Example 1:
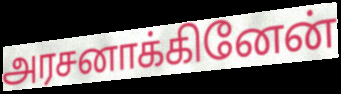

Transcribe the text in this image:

அரசனாக்கினேன்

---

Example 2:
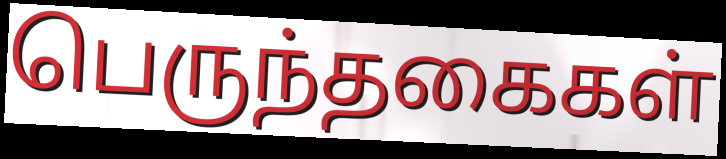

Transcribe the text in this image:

பெருந்தகைகள்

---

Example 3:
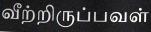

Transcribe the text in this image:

வீற்றிருப்பவள்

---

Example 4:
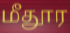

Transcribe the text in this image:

மீதூர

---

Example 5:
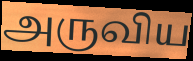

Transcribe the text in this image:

அருவிய